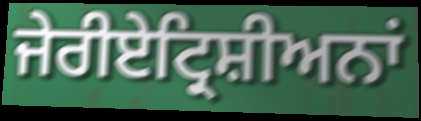
ਜੇਰੀਏਟ੍ਰਿਸ਼ੀਅਨਾਂ